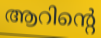
ആറിന്റെ